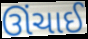
ઊંચાઈ